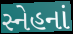
સ્નેહનાં